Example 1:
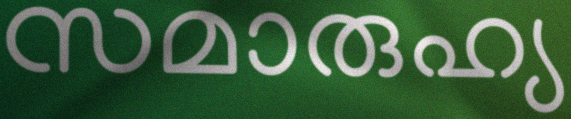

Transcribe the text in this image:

സമാരുഹ്യ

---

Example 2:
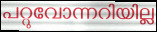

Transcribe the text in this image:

പറ്റുവോന്നറിയില്ല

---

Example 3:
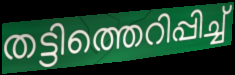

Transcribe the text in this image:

തട്ടിത്തെറിപ്പിച്ച്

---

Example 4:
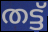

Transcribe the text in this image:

തട്ട്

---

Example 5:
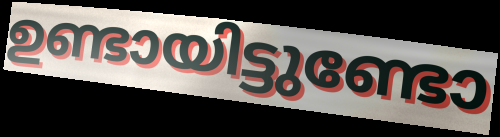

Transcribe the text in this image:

ഉണ്ടായിട്ടുണ്ടോ